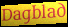
Dagblad